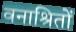
वनाश्रितों